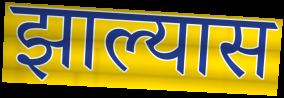
झाल्यास